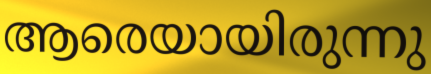
ആരെയായിരുന്നു